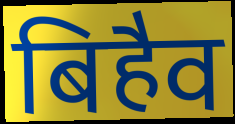
बिहैव